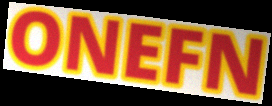
ONEFN